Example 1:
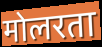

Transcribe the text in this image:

मोलरता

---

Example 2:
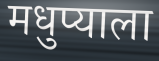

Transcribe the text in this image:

मधुप्याला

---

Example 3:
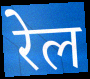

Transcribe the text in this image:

रेल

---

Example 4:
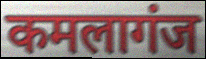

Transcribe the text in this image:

कमलागंज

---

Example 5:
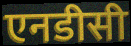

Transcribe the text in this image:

एनडीसी